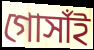
গোসাঁই